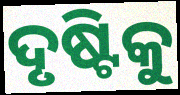
ଦୃଷ୍ଟିକୁ